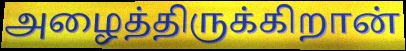
அழைத்திருக்கிறான்